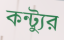
কন্ট্যুর